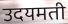
उदयमती